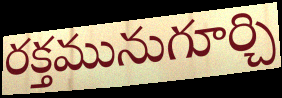
రక్తమునుగూర్చి